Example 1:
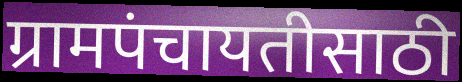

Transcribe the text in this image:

ग्रामपंचायतीसाठी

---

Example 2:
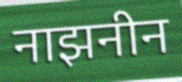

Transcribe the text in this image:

नाझनीन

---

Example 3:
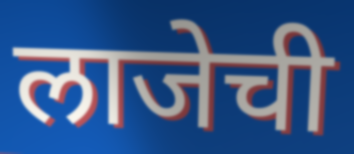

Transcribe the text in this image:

लाजेची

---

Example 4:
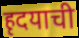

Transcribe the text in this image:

हृदयाची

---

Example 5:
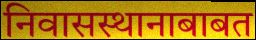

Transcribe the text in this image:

निवासस्थानाबाबत